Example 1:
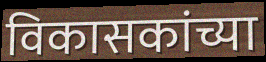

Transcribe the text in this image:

विकासकांच्या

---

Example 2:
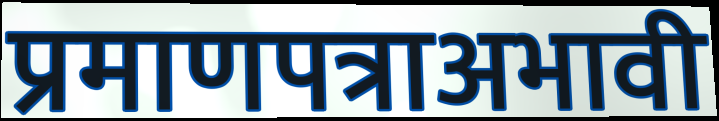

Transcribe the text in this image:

प्रमाणपत्राअभावी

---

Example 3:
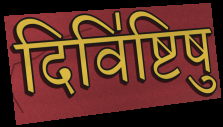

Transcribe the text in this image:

दिवि॑ष्टिषु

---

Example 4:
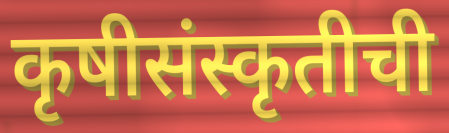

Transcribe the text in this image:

कृषीसंस्कृतीची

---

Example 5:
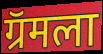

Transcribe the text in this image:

ग्रॅमला